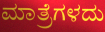
ಮಾತ್ರೆಗಳದು